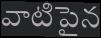
వాటిపైన